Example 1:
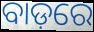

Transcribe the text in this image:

ବାଡ଼ରେ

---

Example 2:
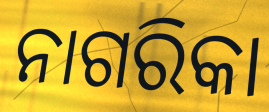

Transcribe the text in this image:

ନାଗରିକା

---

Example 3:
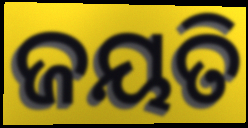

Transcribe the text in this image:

ଜୟତି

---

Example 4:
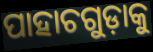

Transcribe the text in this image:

ପାହାଚଗୁଡ଼ାକୁ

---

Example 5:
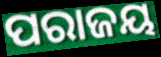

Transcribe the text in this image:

ପରାଜୟ